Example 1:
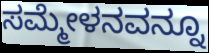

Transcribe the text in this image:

ಸಮ್ಮೇಳನವನ್ನೂ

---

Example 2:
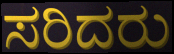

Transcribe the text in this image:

ಸರಿದರು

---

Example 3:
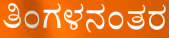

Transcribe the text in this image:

ತಿಂಗಳನಂತರ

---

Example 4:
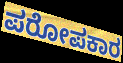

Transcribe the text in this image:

ಪರೋಪಕಾರ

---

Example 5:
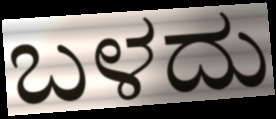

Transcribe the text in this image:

ಬಳದು